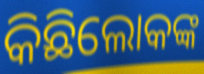
କିଛିଲୋକଙ୍କ